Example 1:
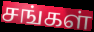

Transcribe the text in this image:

சங்கள்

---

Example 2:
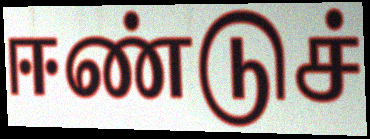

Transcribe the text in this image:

ஈண்டுச்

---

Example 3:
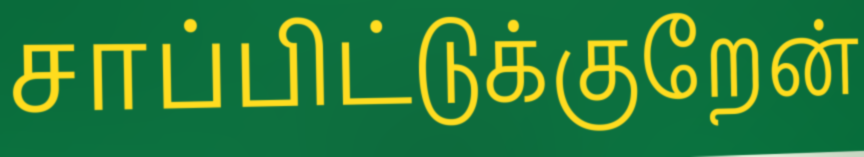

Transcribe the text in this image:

சாப்பிட்டுக்குறேன்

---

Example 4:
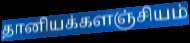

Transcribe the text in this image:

தானியக்களஞ்சியம்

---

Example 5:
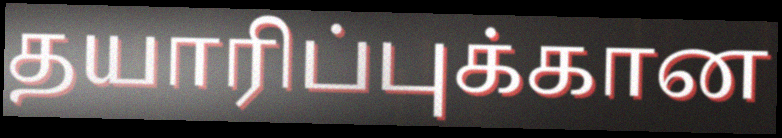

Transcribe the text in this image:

தயாரிப்புக்கான